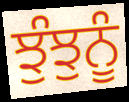
ਝੁੰਝੁਨੂੰ